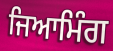
ਜਿਆਮਿੰਗ